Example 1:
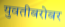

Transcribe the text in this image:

युवतीबरोबर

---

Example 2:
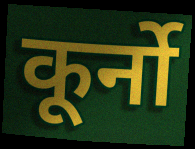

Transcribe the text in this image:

कूर्नो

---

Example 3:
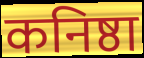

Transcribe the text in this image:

कनिष्ठा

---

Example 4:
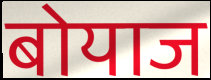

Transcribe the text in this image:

बोयाज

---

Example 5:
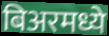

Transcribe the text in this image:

बिअरमध्ये